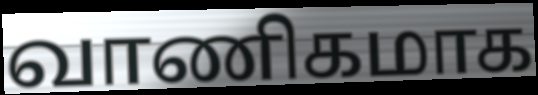
வாணிகமாக